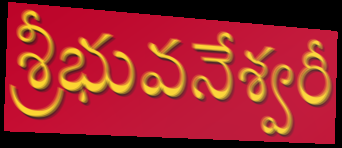
శ్రీభువనేశ్వరీ